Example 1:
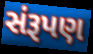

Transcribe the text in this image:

સંરૂપણ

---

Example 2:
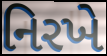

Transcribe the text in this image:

નિરખે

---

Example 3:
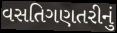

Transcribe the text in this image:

વસતિગણતરીનું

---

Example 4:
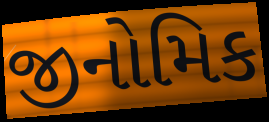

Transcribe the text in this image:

જીનોમિક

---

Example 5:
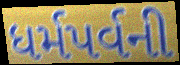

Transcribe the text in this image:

ધર્મપર્વની